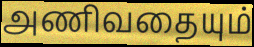
அணிவதையும்